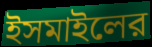
ইসমাইলের